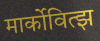
मार्कोवित्झ